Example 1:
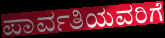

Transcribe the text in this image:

ಪಾರ್ವತಿಯವರಿಗೆ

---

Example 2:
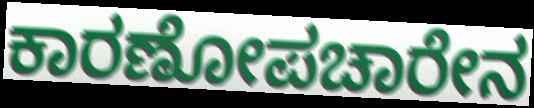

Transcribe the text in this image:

ಕಾರಣೋಪಚಾರೇನ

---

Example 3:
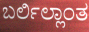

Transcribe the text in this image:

ಬರ್ಲಿಲ್ಲಾಂತ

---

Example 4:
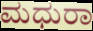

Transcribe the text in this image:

ಮಧುರಾ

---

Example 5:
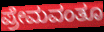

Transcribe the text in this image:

ಪ್ರೇಮವಂತೂ